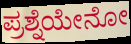
ಪ್ರಶ್ನೆಯೇನೋ